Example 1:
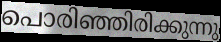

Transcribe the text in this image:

പൊരിഞ്ഞിരിക്കുന്നു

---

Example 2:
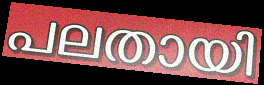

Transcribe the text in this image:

പലതായി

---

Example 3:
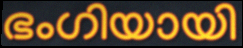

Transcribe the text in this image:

ഭംഗിയായി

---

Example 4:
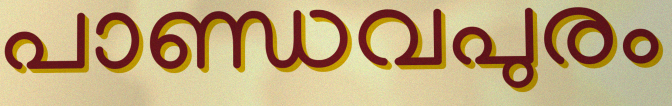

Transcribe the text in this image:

പാണ്ഡവപുരം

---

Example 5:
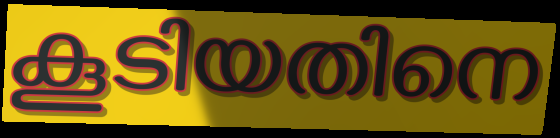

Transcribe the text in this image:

കൂടിയതിനെ